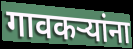
गावकऱ्यांना